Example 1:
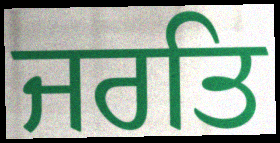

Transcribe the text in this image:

ਜਰਤਿ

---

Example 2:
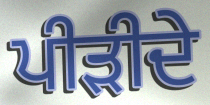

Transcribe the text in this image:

ਪੀੜੀਦੇ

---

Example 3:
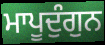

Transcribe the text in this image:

ਮਾਪੂਦੁੰਗੁਨ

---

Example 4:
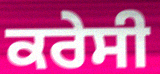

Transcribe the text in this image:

ਕਰੇਸੀ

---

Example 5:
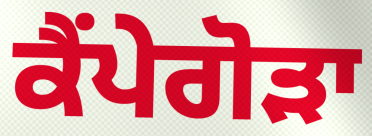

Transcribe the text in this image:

ਕੈਂਪੇਗੋੜਾ